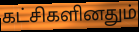
கட்சிகளினதும்